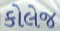
કોલેજ